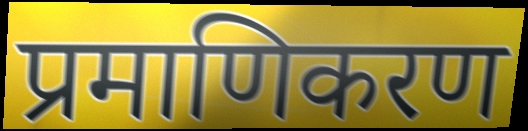
प्रमाणिकरण